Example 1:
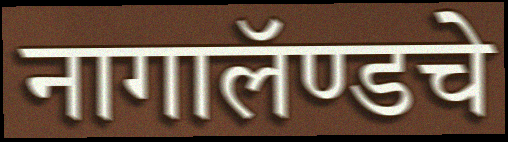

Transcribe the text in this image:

नागालॅण्डचे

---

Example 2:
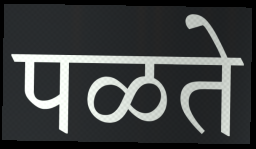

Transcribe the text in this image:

पळते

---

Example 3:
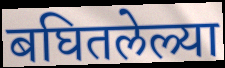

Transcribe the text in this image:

बघितलेल्या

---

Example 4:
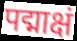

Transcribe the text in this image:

पद्माक्षं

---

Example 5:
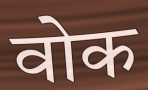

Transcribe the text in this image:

वोक